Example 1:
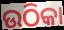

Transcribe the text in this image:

ଉଠିକା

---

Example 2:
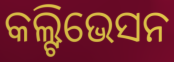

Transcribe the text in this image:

କଲ୍ଟିଭେସନ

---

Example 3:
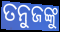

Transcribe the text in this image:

ତନୁଜଙ୍କୁ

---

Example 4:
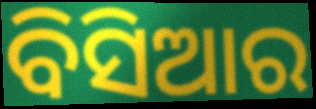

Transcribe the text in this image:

ବିସିଆର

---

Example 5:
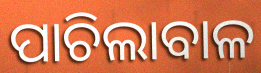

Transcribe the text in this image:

ପାଚିଲାବାଳ